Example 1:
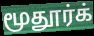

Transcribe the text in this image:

மூதூர்க்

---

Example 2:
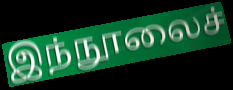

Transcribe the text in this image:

இந்நூலைச்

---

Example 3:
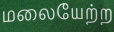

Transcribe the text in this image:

மலையேற்ற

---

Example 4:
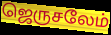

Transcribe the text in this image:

ஜெருசலேம்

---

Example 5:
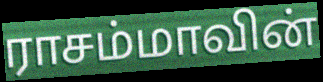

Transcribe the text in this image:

ராசம்மாவின்